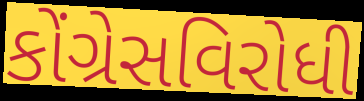
કોંગ્રેસવિરોધી